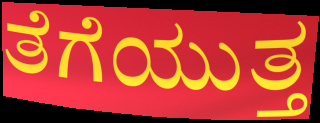
ತೆಗೆಯುತ್ತ